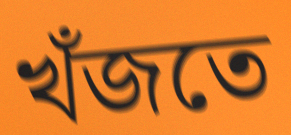
খঁজতে